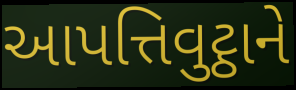
આપત્તિવુટ્ઠાને